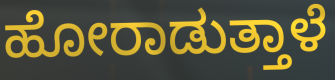
ಹೋರಾಡುತ್ತಾಳೆ